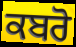
ਕਬਰੋ